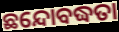
ଛନ୍ଦୋବଦ୍ଧତା